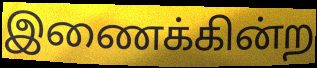
இணைக்கின்ற